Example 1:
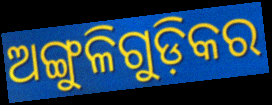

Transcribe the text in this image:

ଅଙ୍ଗୁଳିଗୁଡ଼ିକର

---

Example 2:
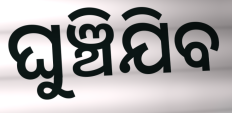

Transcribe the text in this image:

ଘୁଞ୍ଚିଯିବ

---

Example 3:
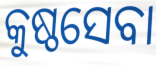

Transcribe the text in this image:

କୁଷ୍ଠସେବା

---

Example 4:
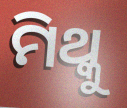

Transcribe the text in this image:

ମିଥ୍କୁ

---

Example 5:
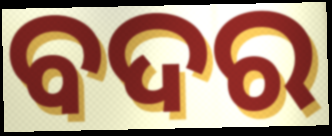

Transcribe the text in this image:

ବଦର